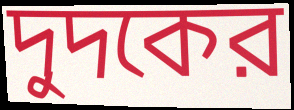
দুদকের